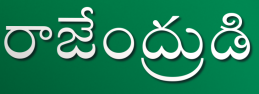
రాజేంద్రుడి